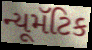
ન્યૂમૅટિક